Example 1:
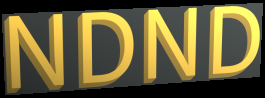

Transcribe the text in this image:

NDND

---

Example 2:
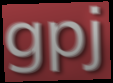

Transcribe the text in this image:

gpj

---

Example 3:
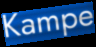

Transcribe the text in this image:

Kampe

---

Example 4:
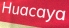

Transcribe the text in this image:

Huacaya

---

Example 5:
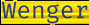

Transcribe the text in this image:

Wenger